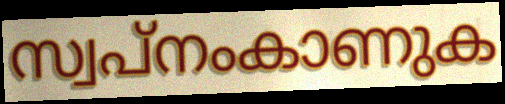
സ്വപ്നംകാണുക